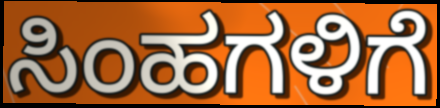
ಸಿಂಹಗಳಿಗೆ